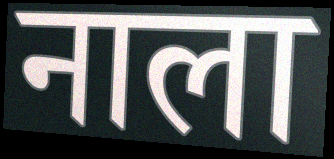
नाला